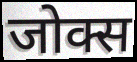
जोक्स